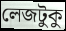
লেজটুকু